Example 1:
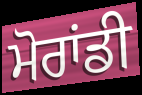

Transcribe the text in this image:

ਮੋਰਾਂਡੀ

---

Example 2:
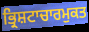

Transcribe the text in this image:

ਭ੍ਰਿਸ਼ਟਾਚਾਰਮੁਕਤ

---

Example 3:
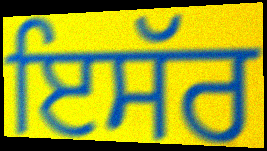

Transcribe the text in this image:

ਇਸੱਰ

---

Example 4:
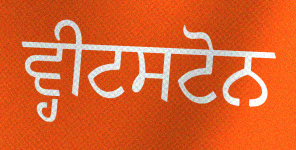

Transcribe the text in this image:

ਵ੍ਹੀਟਸਟੋਨ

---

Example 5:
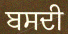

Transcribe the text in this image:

ਬਸਦੀ